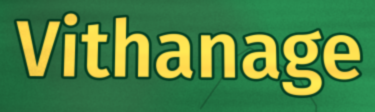
Vithanage